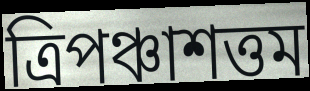
ত্রিপঞ্চাশত্তম